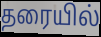
தரையில்